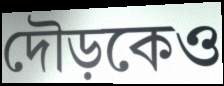
দৌড়কেও